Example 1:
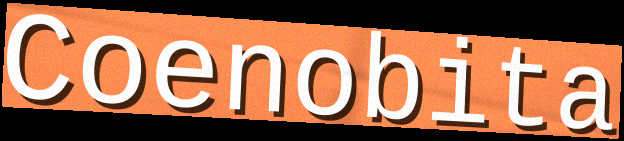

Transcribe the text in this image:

Coenobita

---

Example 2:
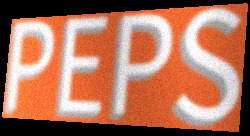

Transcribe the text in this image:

PEPS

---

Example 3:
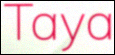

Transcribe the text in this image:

Taya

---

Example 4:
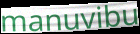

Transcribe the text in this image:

manuvibu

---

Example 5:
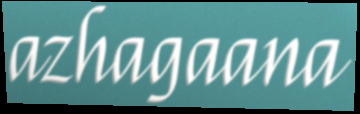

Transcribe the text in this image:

azhagaana